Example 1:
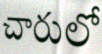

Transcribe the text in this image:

చారులో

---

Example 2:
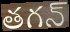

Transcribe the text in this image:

తగన్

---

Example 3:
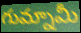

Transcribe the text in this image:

గుమ్నామీ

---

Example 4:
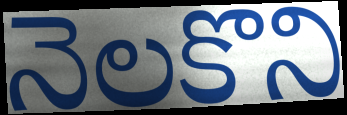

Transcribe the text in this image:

నెలకొని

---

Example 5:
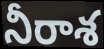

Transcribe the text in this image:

నీరాశ